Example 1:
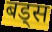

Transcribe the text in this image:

बड्स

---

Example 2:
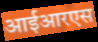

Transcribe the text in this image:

आईआरएस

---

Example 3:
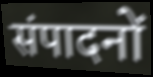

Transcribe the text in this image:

संपादनों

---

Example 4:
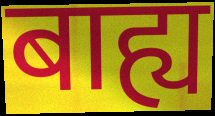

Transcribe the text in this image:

बाह्य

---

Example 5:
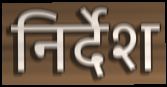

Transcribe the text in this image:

निर्देश